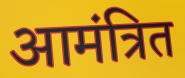
आमंत्रित